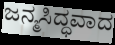
ಜನ್ಮಸಿದ್ಧವಾದ